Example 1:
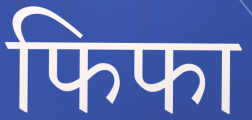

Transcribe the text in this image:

फिफा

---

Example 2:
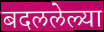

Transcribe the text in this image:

बदललेल्या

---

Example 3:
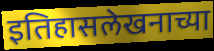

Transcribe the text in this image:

इतिहासलेखनाच्या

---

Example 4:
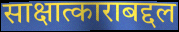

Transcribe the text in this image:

साक्षात्काराबद्दल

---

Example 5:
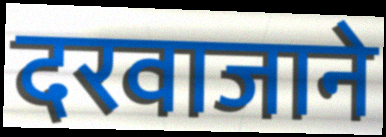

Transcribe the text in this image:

दरवाजाने